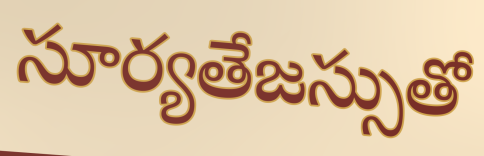
సూర్యతేజస్సుతో